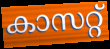
കാസറ്റ്